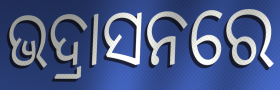
ଭଦ୍ରାସନରେ